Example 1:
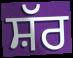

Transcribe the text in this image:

ਸ਼ੱਰ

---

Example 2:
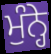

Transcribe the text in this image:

ਮੁੰਨ੍ਹੇ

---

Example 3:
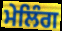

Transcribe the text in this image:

ਮੇਲਿੰਗ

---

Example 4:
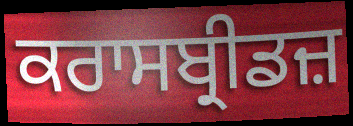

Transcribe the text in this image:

ਕਰਾਸਬ੍ਰੀਡਜ਼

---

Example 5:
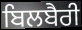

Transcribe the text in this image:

ਬਿਲਬੈਰੀ